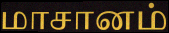
மாசானம்